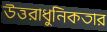
উত্তরাধুনিকতার